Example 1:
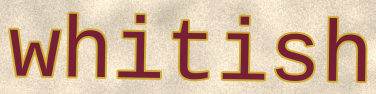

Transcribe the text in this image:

whitish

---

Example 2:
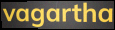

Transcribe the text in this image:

vagartha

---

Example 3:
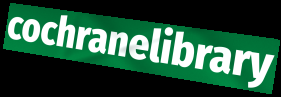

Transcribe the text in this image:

cochranelibrary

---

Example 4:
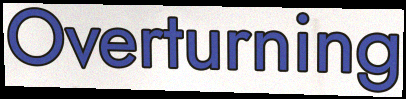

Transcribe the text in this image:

Overturning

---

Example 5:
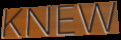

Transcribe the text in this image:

KNEW